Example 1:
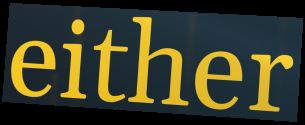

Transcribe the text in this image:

either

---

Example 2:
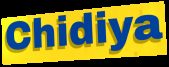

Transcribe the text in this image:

Chidiya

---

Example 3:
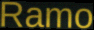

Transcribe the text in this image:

Ramo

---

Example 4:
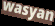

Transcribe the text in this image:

wasyan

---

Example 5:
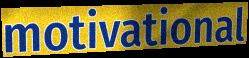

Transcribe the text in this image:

motivational